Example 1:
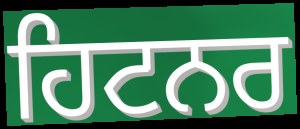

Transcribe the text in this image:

ਹਿਟਨਰ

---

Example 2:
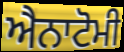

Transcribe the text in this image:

ਐਨਾਟੋਮੀ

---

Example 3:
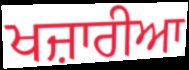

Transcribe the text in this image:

ਖਜ਼ਾਰੀਆ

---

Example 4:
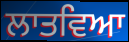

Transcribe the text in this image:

ਲਾਤਵਿਆ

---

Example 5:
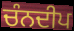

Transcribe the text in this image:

ਚੰਨਦੀਪ